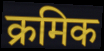
क्रमिक